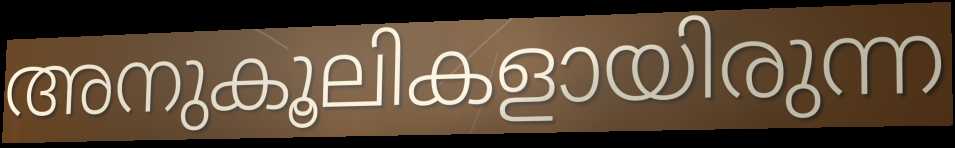
അനുകൂലികളായിരുന്ന